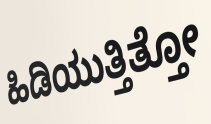
ಹಿಡಿಯುತ್ತಿತ್ತೋ